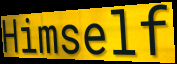
Himself